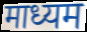
माध्यम